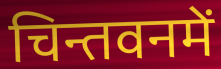
चिन्तवनमें